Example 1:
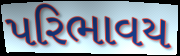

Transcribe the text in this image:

પરિભાવય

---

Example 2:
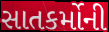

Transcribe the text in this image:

સાતકર્મોની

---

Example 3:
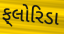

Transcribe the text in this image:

ફ્‌લોરિડા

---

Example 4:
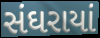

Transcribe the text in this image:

સંઘરાયાં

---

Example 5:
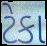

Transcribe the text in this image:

ટેકા